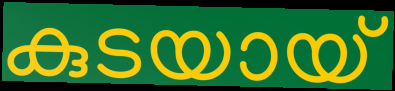
കുടയായ്